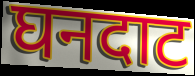
घनदाट